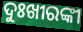
ଦୁଃଖୀରଙ୍କୀ